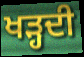
ਖੜ੍ਹਦੀ